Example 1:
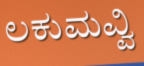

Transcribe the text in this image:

ಲಕುಮವ್ವಿ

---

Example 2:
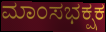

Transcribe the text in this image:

ಮಾಂಸಭಕ್ಷಕ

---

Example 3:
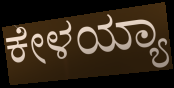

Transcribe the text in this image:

ಕೇಳಯ್ಯಾ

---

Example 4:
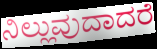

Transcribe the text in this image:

ನಿಲ್ಲುವುದಾದರೆ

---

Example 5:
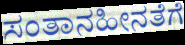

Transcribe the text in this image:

ಸಂತಾನಹೀನತೆಗೆ